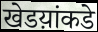
खेडय़ांकडे